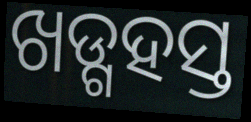
ଖଡ୍ଗହସ୍ତ